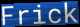
Frick